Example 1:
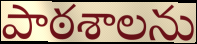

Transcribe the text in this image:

పాఠశాలను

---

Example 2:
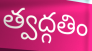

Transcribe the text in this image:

త్వద్గతిం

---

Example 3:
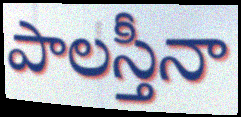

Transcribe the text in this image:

పాలస్తీనా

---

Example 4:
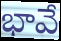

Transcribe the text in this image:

భావే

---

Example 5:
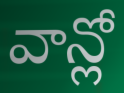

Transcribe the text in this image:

వాన్లో